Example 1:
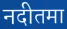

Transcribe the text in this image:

नदीतमा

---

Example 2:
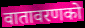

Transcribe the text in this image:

वातावरणको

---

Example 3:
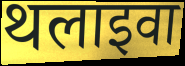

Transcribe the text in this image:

थलाइवा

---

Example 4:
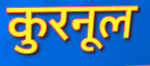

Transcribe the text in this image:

कुरनूल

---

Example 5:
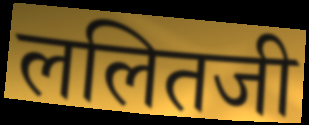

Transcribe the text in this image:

ललितजी